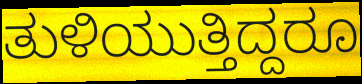
ತುಳಿಯುತ್ತಿದ್ದರೂ